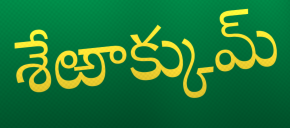
శేఱాక్కుమ్